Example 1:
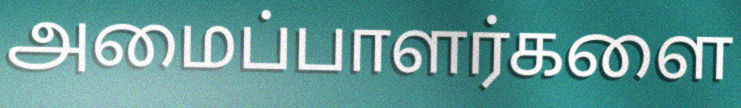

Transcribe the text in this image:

அமைப்பாளர்களை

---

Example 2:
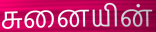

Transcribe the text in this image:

சுனையின்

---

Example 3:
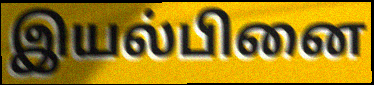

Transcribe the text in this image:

இயல்பினை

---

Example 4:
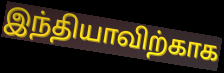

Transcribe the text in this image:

இந்தியாவிற்காக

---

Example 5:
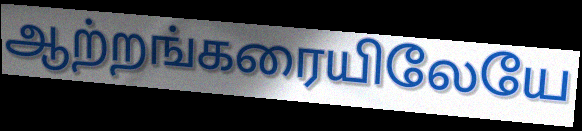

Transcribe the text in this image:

ஆற்றங்கரையிலேயே